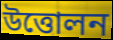
উত্তোলন